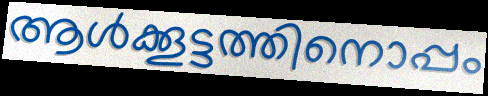
ആൾക്കൂട്ടത്തിനൊപ്പം